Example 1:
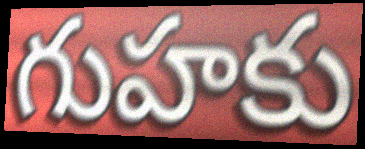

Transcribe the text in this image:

గుహకు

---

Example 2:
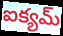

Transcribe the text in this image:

ఐక్యమ్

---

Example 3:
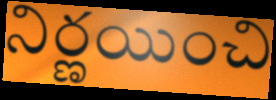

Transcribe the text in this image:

నిర్ణయించి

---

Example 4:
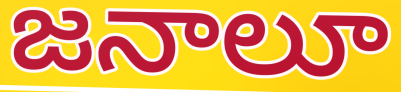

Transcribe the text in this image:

జనాలూ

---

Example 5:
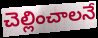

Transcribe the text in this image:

చెల్లించాలనే